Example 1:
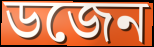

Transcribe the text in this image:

ডজেন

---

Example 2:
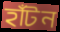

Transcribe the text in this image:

হাঁটন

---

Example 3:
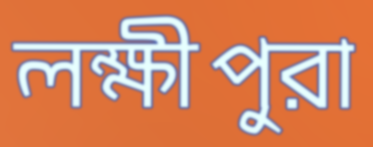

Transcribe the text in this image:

লক্ষীপুরা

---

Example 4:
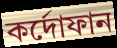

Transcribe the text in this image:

কর্দোফান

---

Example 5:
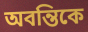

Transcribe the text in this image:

অবন্তিকে